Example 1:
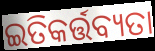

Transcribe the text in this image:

ଇତିକର୍ତ୍ତବ୍ୟତା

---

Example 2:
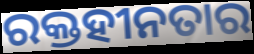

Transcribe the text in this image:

ରକ୍ତହୀନତାର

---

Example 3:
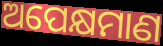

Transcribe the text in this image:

ଅପେକ୍ଷମାଣ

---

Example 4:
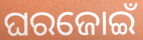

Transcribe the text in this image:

ଘରଜୋଇଁ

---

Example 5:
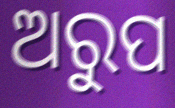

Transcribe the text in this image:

ଅରୁପ